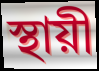
স্থায়ী